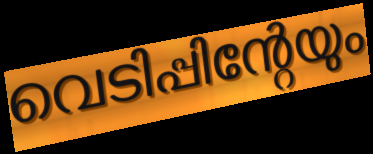
വെടിപ്പിന്റേയും